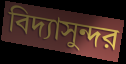
বিদ্যাসুন্দর